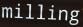
milling